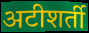
अटीशर्ती